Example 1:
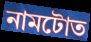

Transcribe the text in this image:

নামটোত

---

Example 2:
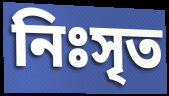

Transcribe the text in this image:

নিঃসৃত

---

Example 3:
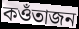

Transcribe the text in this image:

কওঁতাজন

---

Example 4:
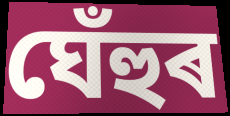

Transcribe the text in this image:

ঘেঁহুৰ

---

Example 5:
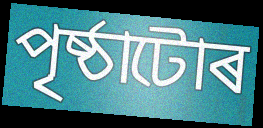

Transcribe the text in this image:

পৃষ্ঠাটোৰ